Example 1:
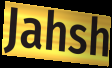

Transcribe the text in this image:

Jahsh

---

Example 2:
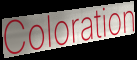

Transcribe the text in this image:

Coloration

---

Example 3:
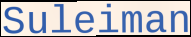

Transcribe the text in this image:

Suleiman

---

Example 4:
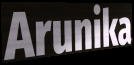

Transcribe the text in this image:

Arunika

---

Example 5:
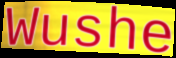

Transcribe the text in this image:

Wushe